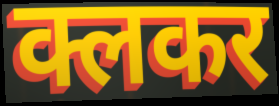
क्लकर